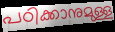
പഠിക്കാനുമുള്ള